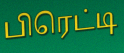
பிரெட்டி